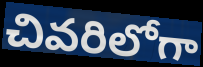
చివరిలోగా